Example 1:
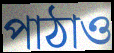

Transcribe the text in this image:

পাঠাও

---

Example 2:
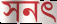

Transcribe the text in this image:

সনৎ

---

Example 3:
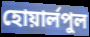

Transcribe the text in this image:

হোয়ার্লপুল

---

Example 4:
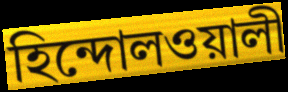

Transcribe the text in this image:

হিন্দোলওয়ালী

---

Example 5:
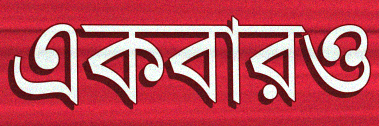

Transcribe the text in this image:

একবারও